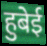
हुबेई